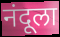
नंदूला